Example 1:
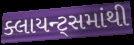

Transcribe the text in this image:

ક્લાયન્ટ્સમાંથી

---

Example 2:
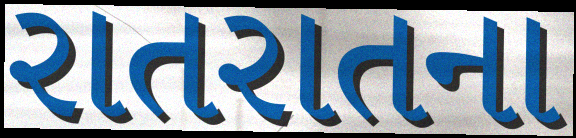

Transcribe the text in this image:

રાતરાતના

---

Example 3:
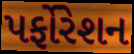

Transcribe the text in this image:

પર્ફોરેશન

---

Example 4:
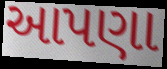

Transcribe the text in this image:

આપણા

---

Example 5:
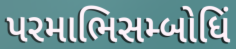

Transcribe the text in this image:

પરમાભિસમ્બોધિં